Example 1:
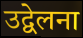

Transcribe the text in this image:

उद्वेलना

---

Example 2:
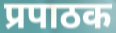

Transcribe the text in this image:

प्रपाठक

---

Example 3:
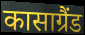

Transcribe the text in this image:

कासाग्रैंड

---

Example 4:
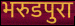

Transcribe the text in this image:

भरुडपुरा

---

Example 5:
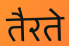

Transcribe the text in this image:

तैरते